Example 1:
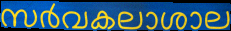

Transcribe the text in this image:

സർവകലാശാല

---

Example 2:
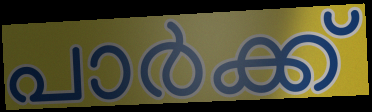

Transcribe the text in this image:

പാർക്ക്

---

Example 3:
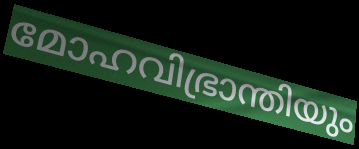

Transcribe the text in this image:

മോഹവിഭ്രാന്തിയും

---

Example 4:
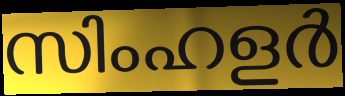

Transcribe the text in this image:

സിംഹളർ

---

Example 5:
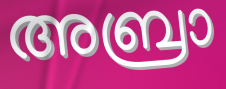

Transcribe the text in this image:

അബ്രാ